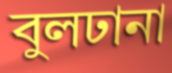
বুলঢানা